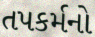
તપકર્મનો